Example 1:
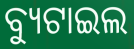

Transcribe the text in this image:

ବ୍ୟୁଟାଇଲ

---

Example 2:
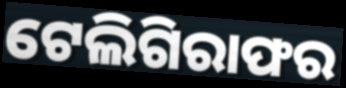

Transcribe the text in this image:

ଟେଲିଗିରାଫର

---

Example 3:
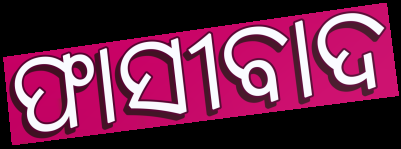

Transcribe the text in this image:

ଫାସୀବାଦ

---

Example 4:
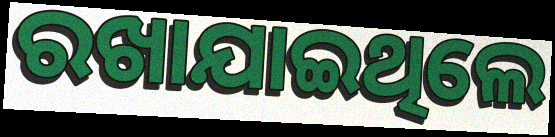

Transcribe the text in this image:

ରଖାଯାଇଥିଲେ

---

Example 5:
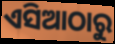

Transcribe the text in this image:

ଏସିଆଠାରୁ